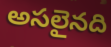
అసలైనది